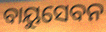
ବାୟୁସେବନ